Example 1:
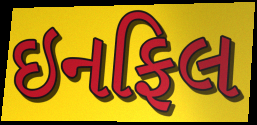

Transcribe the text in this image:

ઇનફિલ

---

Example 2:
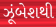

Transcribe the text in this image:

ઝૂંબેશથી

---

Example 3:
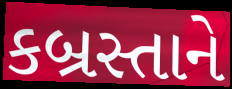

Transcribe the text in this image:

કબ્રસ્તાને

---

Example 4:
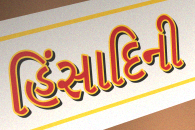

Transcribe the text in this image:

હિંસાદિની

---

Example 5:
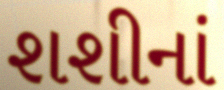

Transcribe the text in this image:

શશીનાં